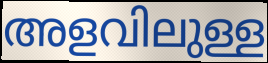
അളവിലുള്ള